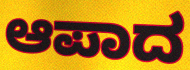
ಆಪಾದ